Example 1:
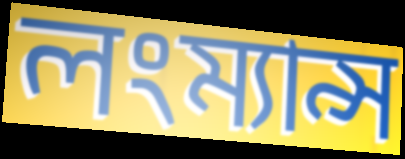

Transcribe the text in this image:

লংম্যান্স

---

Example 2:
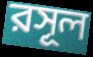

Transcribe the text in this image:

রসূল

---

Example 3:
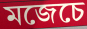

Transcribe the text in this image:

মজেচে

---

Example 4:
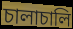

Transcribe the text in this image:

চালাচালি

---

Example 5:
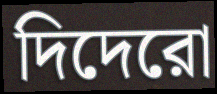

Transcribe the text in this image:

দিদেরো